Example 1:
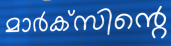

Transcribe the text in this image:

മാർക്‌സിന്റെ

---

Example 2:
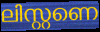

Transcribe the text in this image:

ലിസ്റ്റണെ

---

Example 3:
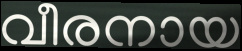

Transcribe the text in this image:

വീരനായ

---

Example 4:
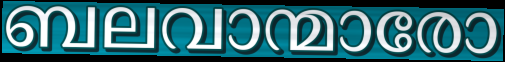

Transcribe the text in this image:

ബലവാന്മാരോ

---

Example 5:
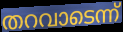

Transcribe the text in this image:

തറവാടെന്ന്